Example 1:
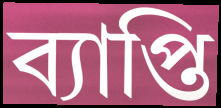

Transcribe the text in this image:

ব্য়াপ্তি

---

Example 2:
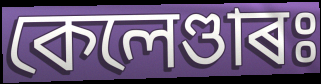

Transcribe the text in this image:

কেলেণ্ডাৰঃ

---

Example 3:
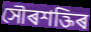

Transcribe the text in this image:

সৌৰশক্তিৰ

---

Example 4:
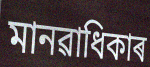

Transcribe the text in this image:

মানৱাধিকাৰ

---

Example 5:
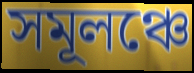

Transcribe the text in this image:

সমূলঞ্চে